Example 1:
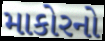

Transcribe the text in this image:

માકોરનો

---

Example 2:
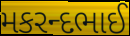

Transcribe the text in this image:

મકરન્દભાઈ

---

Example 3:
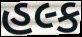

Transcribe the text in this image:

હલ્ક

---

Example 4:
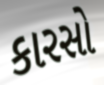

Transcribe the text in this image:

કારસો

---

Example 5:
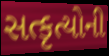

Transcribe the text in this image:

સત્કૃત્યોની